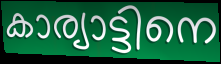
കാര്യാട്ടിനെ